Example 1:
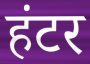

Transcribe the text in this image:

हंटर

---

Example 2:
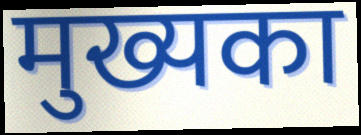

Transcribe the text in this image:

मुख्यका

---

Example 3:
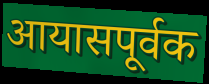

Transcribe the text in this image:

आयासपूर्वक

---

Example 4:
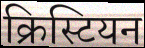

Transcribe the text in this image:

क्रिस्टियन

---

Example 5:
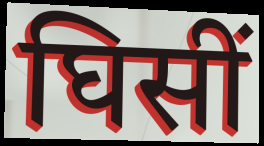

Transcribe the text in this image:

घिसीं